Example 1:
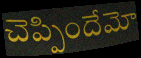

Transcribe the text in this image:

చెప్పిందేమో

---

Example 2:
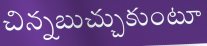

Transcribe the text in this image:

చిన్నబుచ్చుకుంటూ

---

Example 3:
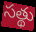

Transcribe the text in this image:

సత్థు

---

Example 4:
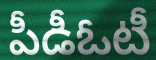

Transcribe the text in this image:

పీడీఓటీ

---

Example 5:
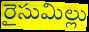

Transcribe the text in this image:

రైసుమిల్లు